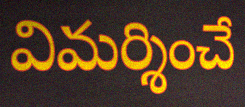
విమర్శించే